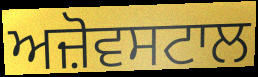
ਅਜ਼ੋਵਸਟਾਲ